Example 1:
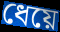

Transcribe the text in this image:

ধেয়ে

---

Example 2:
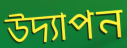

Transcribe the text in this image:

উদ্যাপন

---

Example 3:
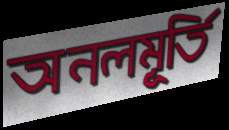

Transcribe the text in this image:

অনলমূর্তি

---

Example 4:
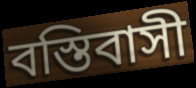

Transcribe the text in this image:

বস্তিবাসী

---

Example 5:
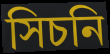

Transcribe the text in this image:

সিচনি